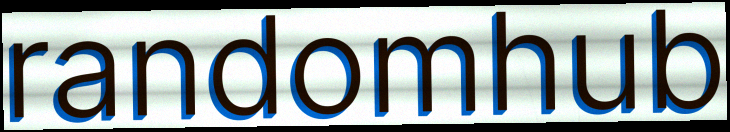
randomhub